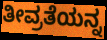
ತೀವ್ರತೆಯನ್ನ